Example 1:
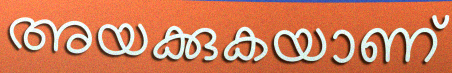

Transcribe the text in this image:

അയക്കുകയാണ്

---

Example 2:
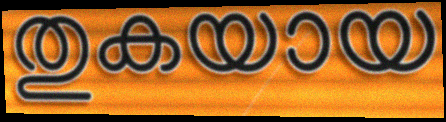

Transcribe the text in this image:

തുകയായ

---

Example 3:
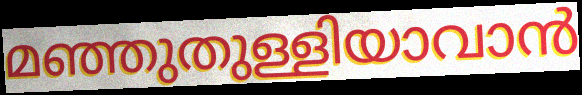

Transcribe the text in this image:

മഞ്ഞുതുള്ളിയാവാൻ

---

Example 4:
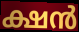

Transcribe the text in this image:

ക്ഷൻ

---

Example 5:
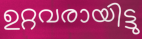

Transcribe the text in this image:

ഉറ്റവരായിട്ടു